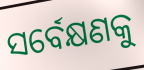
ସର୍ବେକ୍ଷଣକୁ